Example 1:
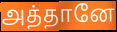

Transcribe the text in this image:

அத்தானே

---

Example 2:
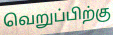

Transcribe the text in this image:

வெறுப்பிற்கு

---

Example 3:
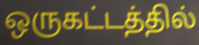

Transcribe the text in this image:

ஒருகட்டத்தில்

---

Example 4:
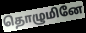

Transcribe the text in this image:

தொழுமினே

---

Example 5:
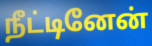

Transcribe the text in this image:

நீட்டினேன்